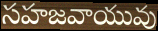
సహజవాయువు